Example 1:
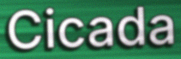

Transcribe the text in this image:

Cicada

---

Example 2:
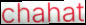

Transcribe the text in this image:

chahat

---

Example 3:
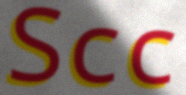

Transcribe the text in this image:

Scc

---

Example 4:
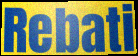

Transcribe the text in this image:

Rebati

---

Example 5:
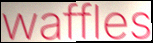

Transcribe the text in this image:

waffles